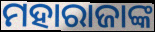
ମହାରାଜାଙ୍କ